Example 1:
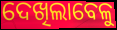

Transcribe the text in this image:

ଦେଖିଲାବେଳୁ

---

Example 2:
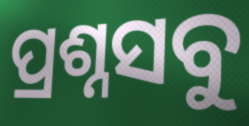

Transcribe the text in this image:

ପ୍ରଶ୍ନସବୁ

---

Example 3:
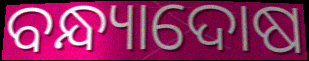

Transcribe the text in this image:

ବନ୍ଧ୍ୟାଦୋଷ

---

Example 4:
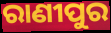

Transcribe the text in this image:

ରାଣୀପୁର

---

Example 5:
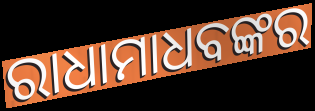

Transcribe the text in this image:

ରାଧାମାଧବଙ୍କର